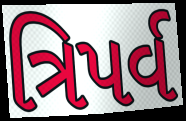
ત્રિપર્વ